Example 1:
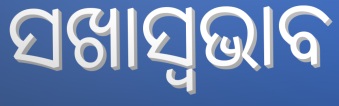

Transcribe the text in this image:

ସଖାସ୍ୱଭାବ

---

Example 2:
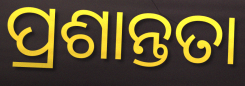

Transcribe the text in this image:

ପ୍ରଶାନ୍ତତା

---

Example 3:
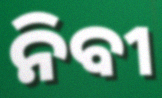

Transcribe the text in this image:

ନିବୀ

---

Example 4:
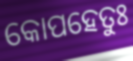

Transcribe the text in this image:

କୋପହେତୁଃ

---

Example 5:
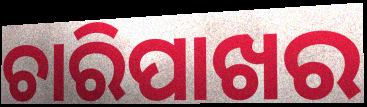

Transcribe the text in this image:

ଚାରିପାଖର